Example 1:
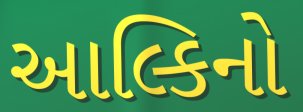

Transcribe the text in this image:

આલ્કિનો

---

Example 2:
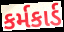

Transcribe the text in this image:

કર્મકાર્ડ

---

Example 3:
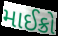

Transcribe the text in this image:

માઈક્રો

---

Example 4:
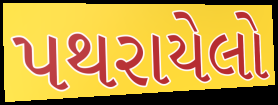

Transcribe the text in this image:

પથરાયેલો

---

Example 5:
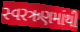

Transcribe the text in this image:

સ્વરઋણમાંથી